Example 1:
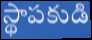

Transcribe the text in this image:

స్థాపకుడి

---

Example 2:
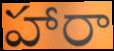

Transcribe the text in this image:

హారా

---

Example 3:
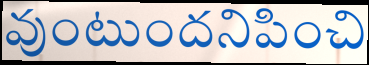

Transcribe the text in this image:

వుంటుందనిపించి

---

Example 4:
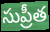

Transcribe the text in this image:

సుప్రీత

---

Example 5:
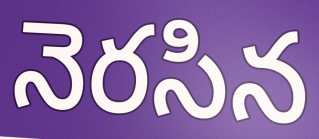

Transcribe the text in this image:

నెరసిన